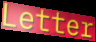
Letter